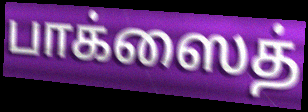
பாக்ஸைத்